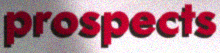
prospects